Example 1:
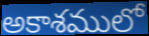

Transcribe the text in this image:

అకాశములో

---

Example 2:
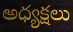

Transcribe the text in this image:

అధ్యక్షలు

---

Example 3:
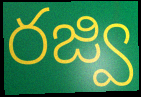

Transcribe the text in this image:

రజ్వి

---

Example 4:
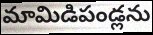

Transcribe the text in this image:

మామిడిపండ్లను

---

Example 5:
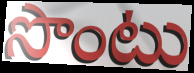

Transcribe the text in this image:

సొంటు